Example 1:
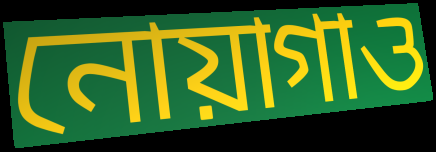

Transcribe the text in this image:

নোয়াগাও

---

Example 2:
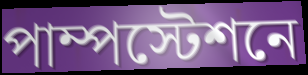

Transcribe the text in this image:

পাম্পস্টেশনে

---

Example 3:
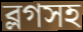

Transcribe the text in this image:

ব্লগসহ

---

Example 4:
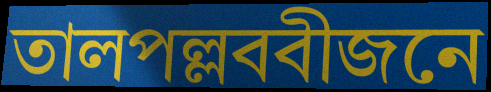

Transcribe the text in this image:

তালপল্লববীজনে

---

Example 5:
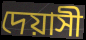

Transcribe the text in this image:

দেয়াসী